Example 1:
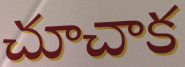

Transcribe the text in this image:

చూచాక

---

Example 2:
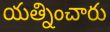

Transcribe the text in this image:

యత్నించారు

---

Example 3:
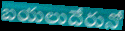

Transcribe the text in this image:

బయలుదేరునో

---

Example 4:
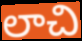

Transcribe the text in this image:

లాచి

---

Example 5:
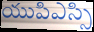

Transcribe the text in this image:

యుపిఎస్సి